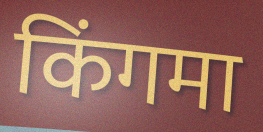
किंगमा